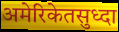
अमेरिकेतसुध्दा